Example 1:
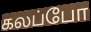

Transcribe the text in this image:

கலப்போ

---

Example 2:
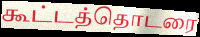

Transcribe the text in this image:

கூட்டத்தொடரை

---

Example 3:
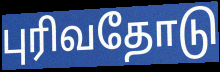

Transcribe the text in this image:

புரிவதோடு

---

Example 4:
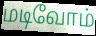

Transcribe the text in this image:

மடிவோம்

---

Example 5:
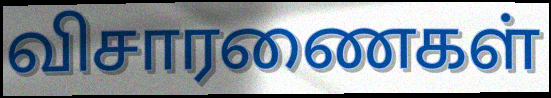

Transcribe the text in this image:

விசாரணைகள்